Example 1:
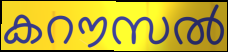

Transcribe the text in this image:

കറൗസൽ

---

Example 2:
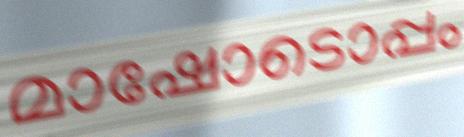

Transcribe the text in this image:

മാഷോടൊപ്പം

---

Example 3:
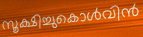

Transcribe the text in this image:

സൂക്ഷിച്ചുകൊൾവിൻ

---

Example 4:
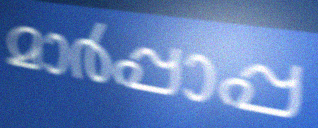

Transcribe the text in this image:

മാർപ്പാപ്പ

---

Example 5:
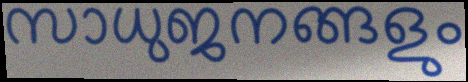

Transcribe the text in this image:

സാധുജനങ്ങളും